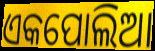
ଏକପୋଲିଆ